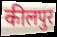
कीलपुर